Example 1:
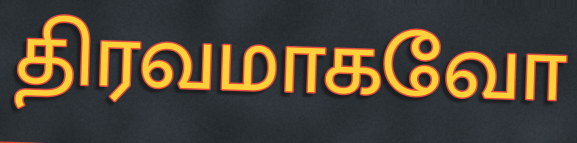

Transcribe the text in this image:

திரவமாகவோ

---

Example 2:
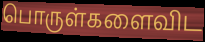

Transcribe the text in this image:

பொருள்களைவிட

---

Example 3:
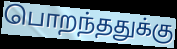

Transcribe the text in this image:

பொறந்ததுக்கு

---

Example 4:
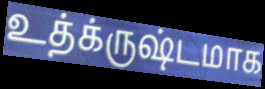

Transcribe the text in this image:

உத்க்ருஷ்டமாக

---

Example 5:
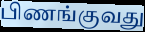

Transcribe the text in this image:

பிணங்குவது